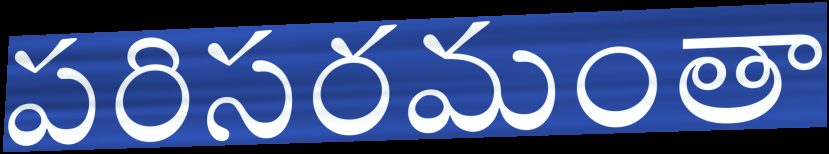
పరిసరమంతా